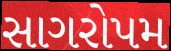
સાગરોપમ